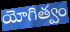
యోగిత్వం